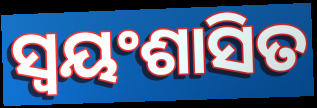
ସ୍ବୟଂଶାସିତ